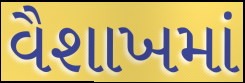
વૈશાખમાં